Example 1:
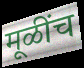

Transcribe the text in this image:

मूळींच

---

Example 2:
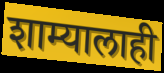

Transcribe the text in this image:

शाम्यालाही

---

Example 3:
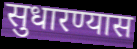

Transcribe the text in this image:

सुधारण्यास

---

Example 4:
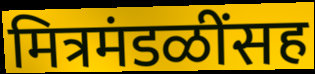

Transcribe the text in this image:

मित्रमंडळींसह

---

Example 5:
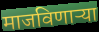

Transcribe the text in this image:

माजविणाऱ्या